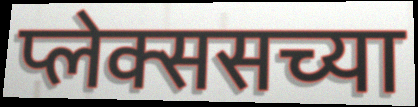
प्लेक्ससच्या